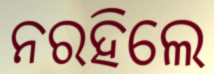
ନରହିଲେ